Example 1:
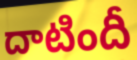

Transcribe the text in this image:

దాటిందీ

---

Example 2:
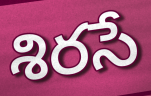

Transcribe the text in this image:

శిరసే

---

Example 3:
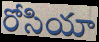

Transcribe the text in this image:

రోసియా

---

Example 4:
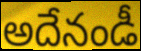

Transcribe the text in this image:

అదేనండీ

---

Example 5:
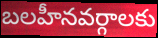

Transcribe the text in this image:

బలహీనవర్గాలకు